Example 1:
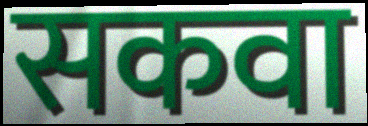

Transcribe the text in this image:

सकवा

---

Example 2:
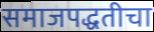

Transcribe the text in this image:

समाजपद्धतीचा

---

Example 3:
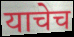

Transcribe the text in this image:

याचेच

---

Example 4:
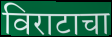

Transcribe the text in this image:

विराटाचा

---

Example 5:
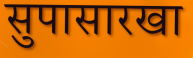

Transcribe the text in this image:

सुपासारखा